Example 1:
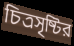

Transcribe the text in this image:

চিত্রসৃষ্টির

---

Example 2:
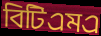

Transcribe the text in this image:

বিটিএমএ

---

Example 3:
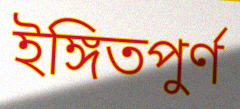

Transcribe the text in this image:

ইঙ্গিতপুর্ণ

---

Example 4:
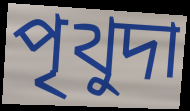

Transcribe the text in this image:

পৃথুদা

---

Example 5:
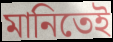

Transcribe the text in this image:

মানিতেই